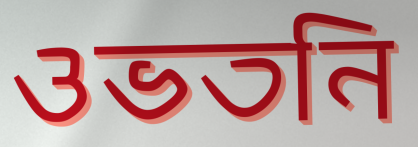
ওভতনি